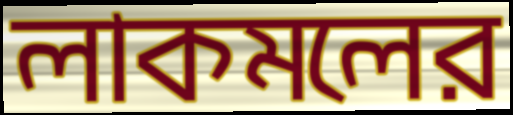
লাকমলের